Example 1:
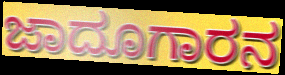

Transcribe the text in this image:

ಜಾದೂಗಾರನ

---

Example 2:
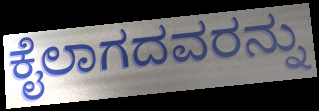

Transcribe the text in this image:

ಕೈಲಾಗದವರನ್ನು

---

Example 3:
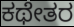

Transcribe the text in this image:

ಕಥೇತರ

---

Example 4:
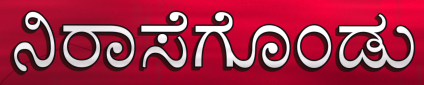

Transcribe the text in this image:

ನಿರಾಸೆಗೊಂಡು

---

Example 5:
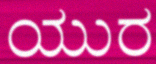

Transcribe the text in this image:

ಯುರ